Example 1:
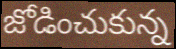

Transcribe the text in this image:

జోడించుకున్న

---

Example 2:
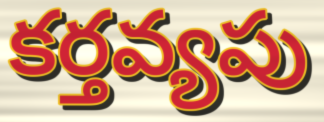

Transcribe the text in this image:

కర్తవ్యపు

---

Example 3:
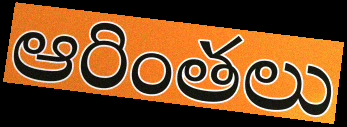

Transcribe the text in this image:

ఆరింతలు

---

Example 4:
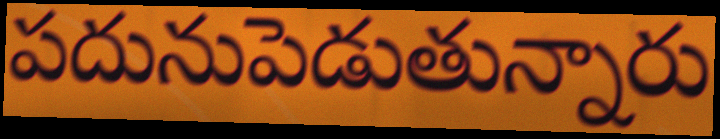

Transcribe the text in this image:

పదునుపెడుతున్నారు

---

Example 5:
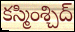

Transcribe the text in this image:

కస్మింశ్చిద్